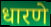
धारणे